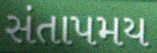
સંતાપમય